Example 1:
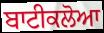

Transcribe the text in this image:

ਬਾਟੀਕਲੋਆ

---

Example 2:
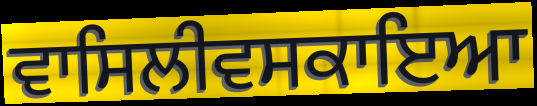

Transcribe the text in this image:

ਵਾਸਿਲੀਵਸਕਾਇਆ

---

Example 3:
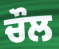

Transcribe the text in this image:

ਚੌਲ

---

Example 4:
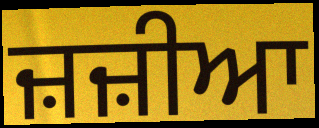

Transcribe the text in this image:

ਜ਼ਜ਼ੀਆ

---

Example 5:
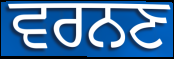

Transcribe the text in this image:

ਵਰਨਣ